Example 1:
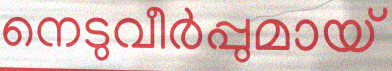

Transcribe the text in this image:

നെടുവീർപ്പുമായ്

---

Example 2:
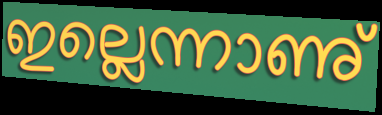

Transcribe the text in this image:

ഇല്ലെന്നാണു്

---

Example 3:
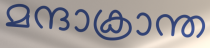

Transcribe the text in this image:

മന്ദാക്രാന്ത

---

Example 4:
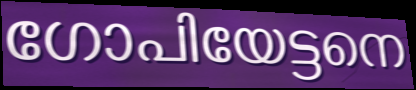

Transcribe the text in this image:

ഗോപിയേട്ടനെ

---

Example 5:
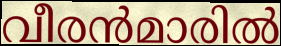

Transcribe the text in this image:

വീരൻമാരിൽ